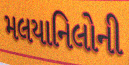
મલયાનિલોની